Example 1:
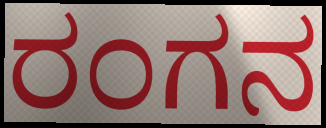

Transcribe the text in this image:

ರಂಗನ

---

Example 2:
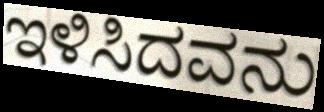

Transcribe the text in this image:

ಇಳಿಸಿದವನು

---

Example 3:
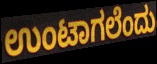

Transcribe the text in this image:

ಉಂಟಾಗಲೆಂದು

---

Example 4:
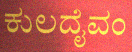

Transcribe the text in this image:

ಕುಲದೈವಂ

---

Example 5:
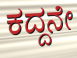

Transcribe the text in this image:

ಕದ್ದನೇ